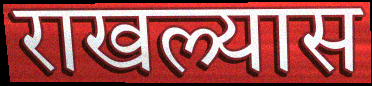
राखल्यास